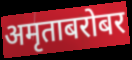
अमृताबरोबर